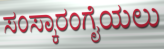
ಸಂಸ್ಕಾರಂಗೈಯಲು